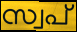
സ്വപ്